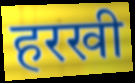
हरखी